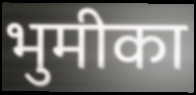
भुमीका